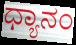
ಧ್ಯಾನಂ